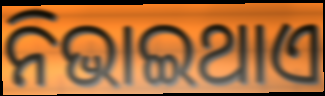
ନିଭାଇଥାଏ